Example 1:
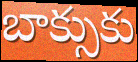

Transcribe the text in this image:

బాక్సుకు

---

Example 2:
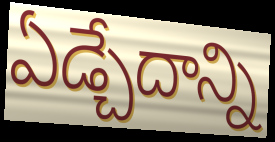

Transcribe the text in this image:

ఏడ్చేదాన్ని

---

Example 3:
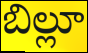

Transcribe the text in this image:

బిల్లూ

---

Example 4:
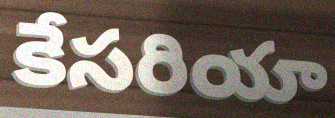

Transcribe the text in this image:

కేసరియా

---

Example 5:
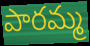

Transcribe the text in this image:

పారమ్మ